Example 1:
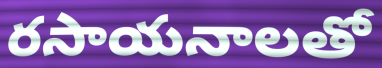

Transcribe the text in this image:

రసాయనాలతో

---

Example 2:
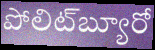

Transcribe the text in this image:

పోలిట్‌బ్యూరో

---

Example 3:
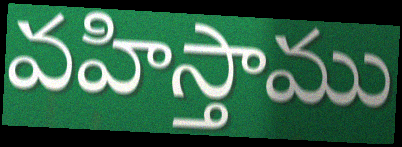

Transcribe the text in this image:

వహిస్తాము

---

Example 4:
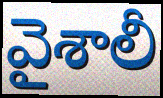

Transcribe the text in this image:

వైశాలీ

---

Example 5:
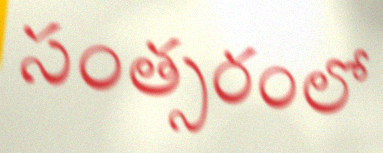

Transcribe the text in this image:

సంత్సరంలో